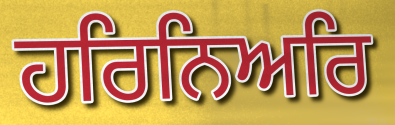
ਹਰਿਨਿਅਰਿ